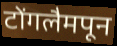
टोंगलैमपून